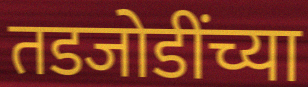
तडजोडींच्या